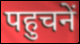
पहुचनें